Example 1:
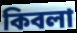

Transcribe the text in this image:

কিবলা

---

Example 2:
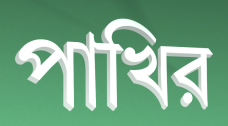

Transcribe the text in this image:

পাখির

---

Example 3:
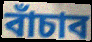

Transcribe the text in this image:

বাঁচাব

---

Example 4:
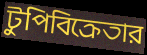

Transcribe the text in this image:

টুপিবিক্রেতার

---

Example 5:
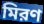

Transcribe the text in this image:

মিরণ